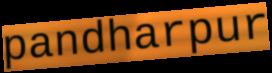
pandharpur